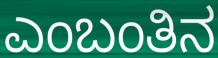
ಎಂಬಂತಿನ